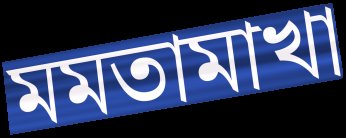
মমতামাখা